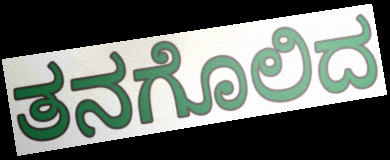
ತನಗೊಲಿದ